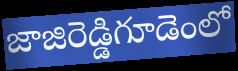
జాజిరెడ్డిగూడెంలో